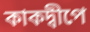
কাকদ্বীপে